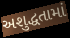
અશુદ્ધતામાં